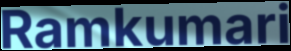
Ramkumari